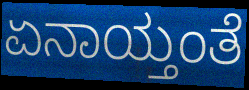
ಏನಾಯ್ತಂತೆ